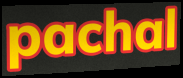
pachal